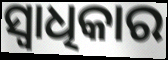
ସ୍ବାଧିକାର